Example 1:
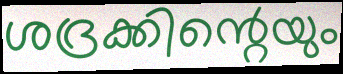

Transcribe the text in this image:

ശദ്രക്കിന്റെയും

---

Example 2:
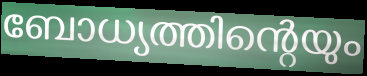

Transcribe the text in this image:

ബോധ്യത്തിന്റെയും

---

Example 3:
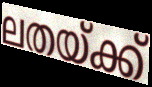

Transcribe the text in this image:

ലതയ്ക്ക്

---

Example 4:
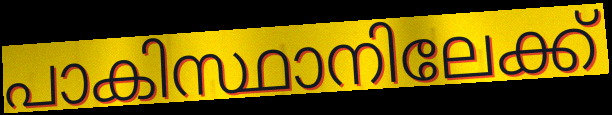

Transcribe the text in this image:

പാകിസ്ഥാനിലേക്ക്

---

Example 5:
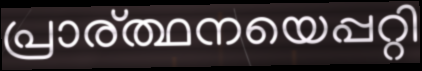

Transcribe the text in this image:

പ്രാര്ത്ഥനയെപ്പറ്റി